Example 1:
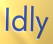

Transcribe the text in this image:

Idly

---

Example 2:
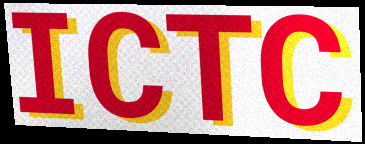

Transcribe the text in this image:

ICTC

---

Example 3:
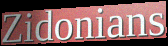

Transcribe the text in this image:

Zidonians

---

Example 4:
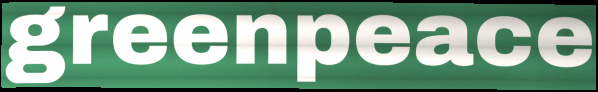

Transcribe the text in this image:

greenpeace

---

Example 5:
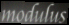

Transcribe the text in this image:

modulus